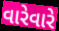
વારેવારે